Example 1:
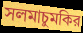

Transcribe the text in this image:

সলমাচুমকির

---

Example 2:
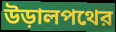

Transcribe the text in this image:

উড়ালপথের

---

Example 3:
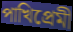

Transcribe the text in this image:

পাখিপ্রেমী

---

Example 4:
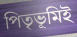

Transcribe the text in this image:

পিতৃভূমিই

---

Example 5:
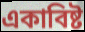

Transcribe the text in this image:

একাবিষ্ট